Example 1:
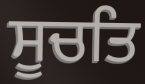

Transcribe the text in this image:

ਸੂਚਤਿ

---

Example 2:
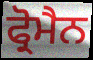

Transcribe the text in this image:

ਫ੍ਰੋਮੈਨ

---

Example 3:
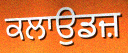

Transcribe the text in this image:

ਕਲਾਉਡਜ਼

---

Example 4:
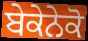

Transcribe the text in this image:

ਬੇਕੇਨੇਕੋ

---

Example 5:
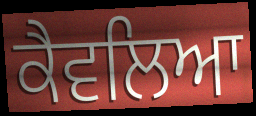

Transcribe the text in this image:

ਕੈਵਲਿਆ